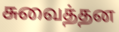
சுவைத்தன